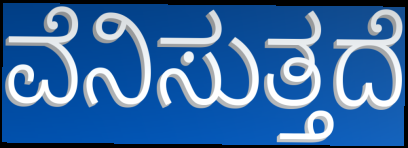
ವೆನಿಸುತ್ತದೆ